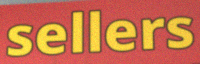
sellers